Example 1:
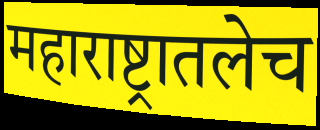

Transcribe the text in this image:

महाराष्ट्रातलेच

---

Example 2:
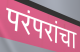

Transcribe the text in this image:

परंपरांचा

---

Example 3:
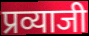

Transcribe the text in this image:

प्रव्याजी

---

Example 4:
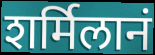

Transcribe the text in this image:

शर्मिलानं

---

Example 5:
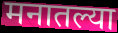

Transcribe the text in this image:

मनातल्या